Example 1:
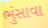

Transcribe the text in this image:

ભુંસાવા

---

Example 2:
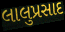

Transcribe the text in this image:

લાલુપ્રસાદ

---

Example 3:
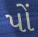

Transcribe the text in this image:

પોં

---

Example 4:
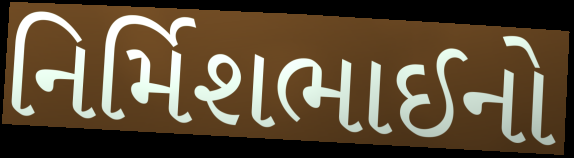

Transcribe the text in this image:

નિર્મિશભાઈનો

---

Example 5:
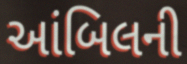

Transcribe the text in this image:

આંબિલની